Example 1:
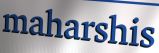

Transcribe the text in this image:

maharshis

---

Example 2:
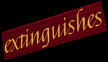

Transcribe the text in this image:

extinguishes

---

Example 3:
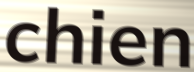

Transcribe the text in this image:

chien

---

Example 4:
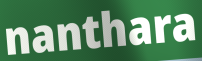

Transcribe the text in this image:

nanthara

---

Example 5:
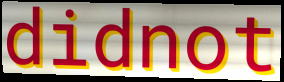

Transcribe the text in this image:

didnot